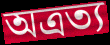
অত্রত্য